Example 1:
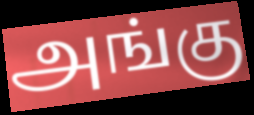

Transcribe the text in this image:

அங்கு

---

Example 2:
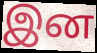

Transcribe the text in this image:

இன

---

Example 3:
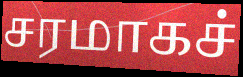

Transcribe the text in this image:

சரமாகச்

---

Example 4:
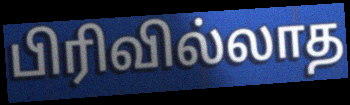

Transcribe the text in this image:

பிரிவில்லாத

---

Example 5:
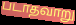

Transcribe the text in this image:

படாதவாறு